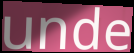
unde